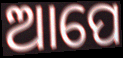
ଆପେ